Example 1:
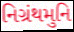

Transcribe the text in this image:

નિગ્રંથમુનિ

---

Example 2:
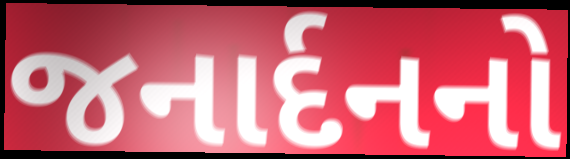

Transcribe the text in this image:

જનાર્દનનો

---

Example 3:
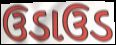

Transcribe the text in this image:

ઉડાઉડ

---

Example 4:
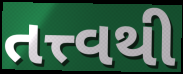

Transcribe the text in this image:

તત્ત્વથી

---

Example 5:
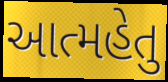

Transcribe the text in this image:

આત્મહેતુ